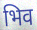
भिव